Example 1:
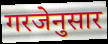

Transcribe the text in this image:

गरजेनुसार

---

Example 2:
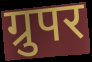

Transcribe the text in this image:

ग्रुपर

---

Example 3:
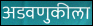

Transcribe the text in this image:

अडवणुकीला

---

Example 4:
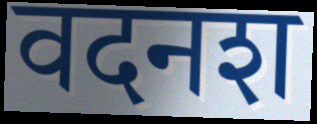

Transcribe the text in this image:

वदनश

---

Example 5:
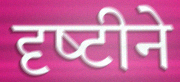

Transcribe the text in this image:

दृष्‍टीने